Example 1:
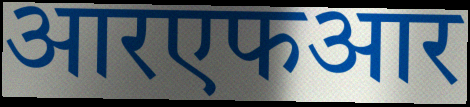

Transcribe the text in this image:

आरएफआर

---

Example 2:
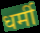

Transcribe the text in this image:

धर्मी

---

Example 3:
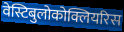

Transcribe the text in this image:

वेस्टिबुलोकोक्लियरिस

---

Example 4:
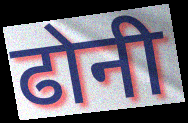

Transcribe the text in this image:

ढोनी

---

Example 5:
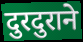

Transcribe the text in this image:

दुरदुराने